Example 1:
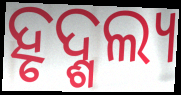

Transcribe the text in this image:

ହୃଦ୍ଶଲ୍ୟ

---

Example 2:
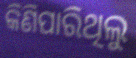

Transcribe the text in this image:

କିଣିପାରିଥିଲୁ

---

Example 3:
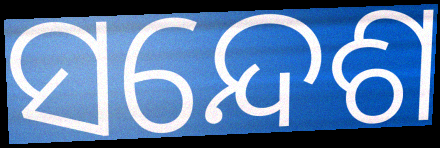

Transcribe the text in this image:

ସନ୍ଦେଶ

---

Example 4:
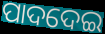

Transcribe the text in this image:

ପାଦଦେଇ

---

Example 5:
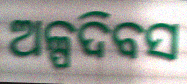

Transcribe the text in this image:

ଅଳ୍ପଦିବସ